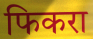
फिकरा